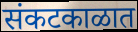
संकटकाळात